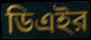
ডিএইর